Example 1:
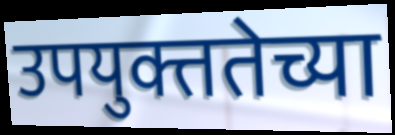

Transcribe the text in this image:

उपयुक्ततेच्या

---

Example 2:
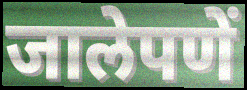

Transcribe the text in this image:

जालेपणें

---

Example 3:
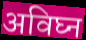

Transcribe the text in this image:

अविघ्न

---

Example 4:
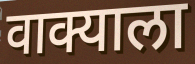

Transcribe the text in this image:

वाक्याला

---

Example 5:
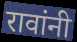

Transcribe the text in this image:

रावांनी